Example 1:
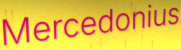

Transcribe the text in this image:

Mercedonius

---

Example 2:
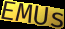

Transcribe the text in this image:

EMUs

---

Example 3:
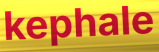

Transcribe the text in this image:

kephale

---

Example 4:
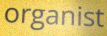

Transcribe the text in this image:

organist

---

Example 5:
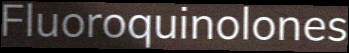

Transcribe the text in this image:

Fluoroquinolones